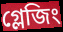
গ্লেজিং